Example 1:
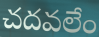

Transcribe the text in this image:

చదవలేం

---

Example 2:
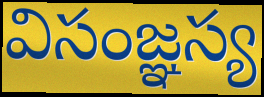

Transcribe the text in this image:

విసంజ్ఞస్య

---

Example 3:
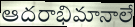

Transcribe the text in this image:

ఆదరాభిమానాలే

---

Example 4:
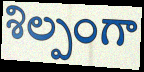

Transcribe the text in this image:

శిల్పంగా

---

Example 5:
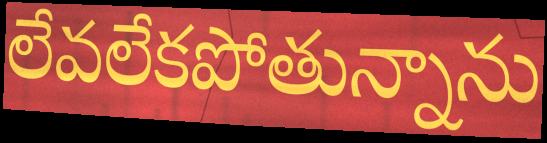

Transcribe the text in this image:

లేవలేకపోతున్నాను